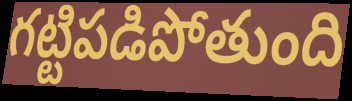
గట్టిపడిపోతుంది